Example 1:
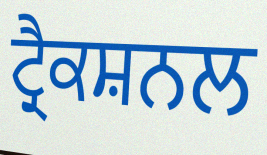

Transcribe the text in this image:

ਟ੍ਰੈਕਸ਼ਨਲ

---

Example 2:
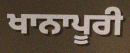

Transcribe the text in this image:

ਖਾਨਾਪੂਰੀ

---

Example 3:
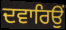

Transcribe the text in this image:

ਦਵਾਰਿਉਂ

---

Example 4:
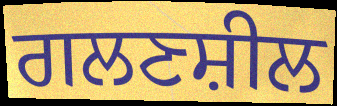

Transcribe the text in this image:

ਗਲਣਸ਼ੀਲ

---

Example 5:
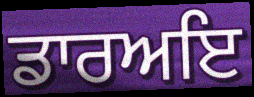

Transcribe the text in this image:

ਡਾਰਅਇ